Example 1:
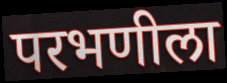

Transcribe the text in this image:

परभणीला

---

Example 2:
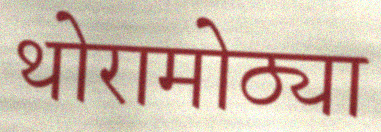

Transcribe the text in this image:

थोरामोठ्या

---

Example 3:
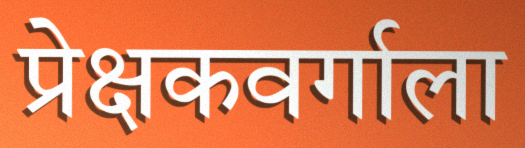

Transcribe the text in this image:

प्रेक्षकवर्गाला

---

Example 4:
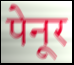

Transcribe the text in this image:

पेनूर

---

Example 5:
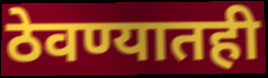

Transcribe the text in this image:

ठेवण्यातही